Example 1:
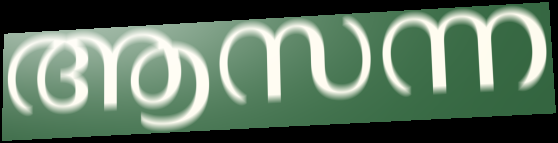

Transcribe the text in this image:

ആസന്ന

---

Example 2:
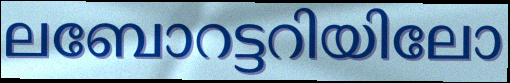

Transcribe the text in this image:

ലബോറട്ടറിയിലോ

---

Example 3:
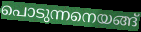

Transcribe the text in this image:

പൊടുന്നനെയങ്ങ്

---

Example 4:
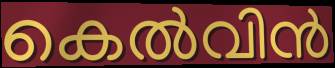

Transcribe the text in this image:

കെൽവിൻ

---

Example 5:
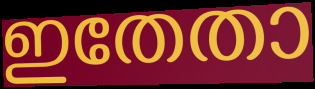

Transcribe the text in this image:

ഇതേതാ